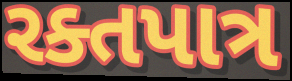
રક્તપાત્ર